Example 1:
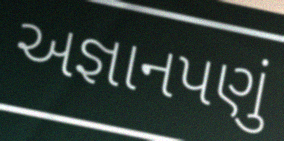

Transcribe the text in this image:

અજ્ઞાનપણું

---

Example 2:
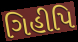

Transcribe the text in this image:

ગિહીપિ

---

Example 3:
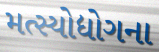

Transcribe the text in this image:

મત્સ્યોદ્યોગના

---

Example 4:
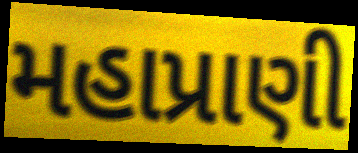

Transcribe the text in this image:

મહાપ્રાણી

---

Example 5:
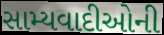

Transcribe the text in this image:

સામ્યવાદીઓની